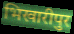
भिखारीपुर